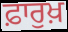
ਫ਼ਾਰੁਖ਼